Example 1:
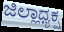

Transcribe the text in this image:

ಜಿಲ್ಲಾಧ್ಯಕ್ಷ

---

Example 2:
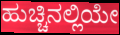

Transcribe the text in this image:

ಹುಚ್ಚಿನಲ್ಲಿಯೇ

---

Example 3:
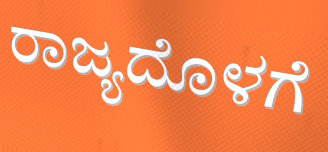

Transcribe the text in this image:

ರಾಜ್ಯದೊಳಗೆ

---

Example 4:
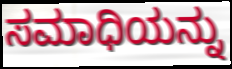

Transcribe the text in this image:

ಸಮಾಧಿಯನ್ನು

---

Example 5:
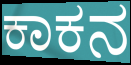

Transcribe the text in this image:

ಕಾಕನ